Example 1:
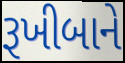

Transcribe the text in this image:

રૂખીબાને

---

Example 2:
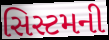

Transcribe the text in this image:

સિસ્ટમની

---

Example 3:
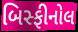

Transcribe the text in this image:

બિસ્ફીનોલ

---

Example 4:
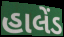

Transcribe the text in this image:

હાલેંડ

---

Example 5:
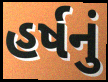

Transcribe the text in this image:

હર્ષનું